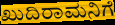
ಖುದಿರಾಮನಿಗೆ